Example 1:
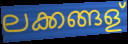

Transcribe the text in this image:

ലക്കങ്ങള്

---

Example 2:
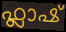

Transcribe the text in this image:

ഫ്ലാഷ്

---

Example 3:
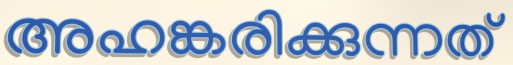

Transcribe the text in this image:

അഹങ്കരിക്കുന്നത്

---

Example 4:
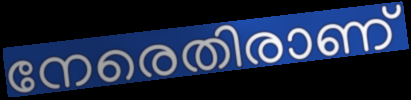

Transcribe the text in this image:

നേരെതിരാണ്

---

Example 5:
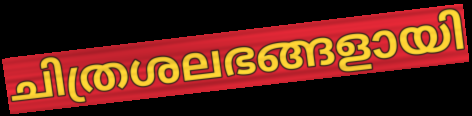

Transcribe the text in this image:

ചിത്രശലഭങ്ങളായി